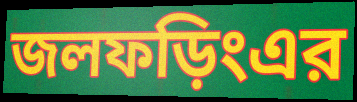
জলফড়িংএর